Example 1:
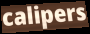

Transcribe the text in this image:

calipers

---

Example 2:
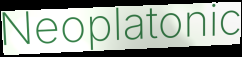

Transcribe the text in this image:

Neoplatonic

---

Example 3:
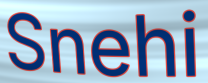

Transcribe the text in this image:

Snehi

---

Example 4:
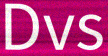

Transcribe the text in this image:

Dvs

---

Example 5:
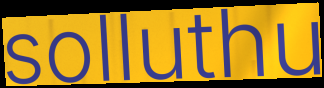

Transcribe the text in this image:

solluthu